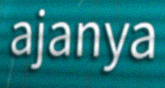
ajanya